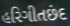
હરિગીતછંદ